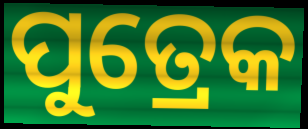
ପୁତ୍ରେକ